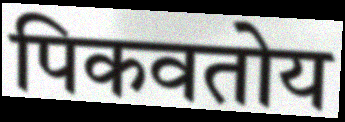
पिकवतोय